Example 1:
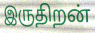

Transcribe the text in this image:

இருதிறன்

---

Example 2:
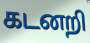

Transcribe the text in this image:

கடனறி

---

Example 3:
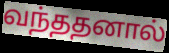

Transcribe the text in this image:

வந்ததனால்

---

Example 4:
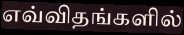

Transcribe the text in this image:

எவ்விதங்களில்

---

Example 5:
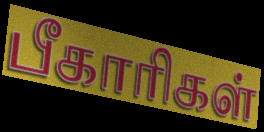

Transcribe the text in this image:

பீகாரிகள்